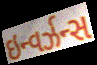
ઇન્વર્ઝન્સ